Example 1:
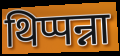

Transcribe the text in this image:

थिप्पन्ना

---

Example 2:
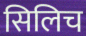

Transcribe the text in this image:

सिलिच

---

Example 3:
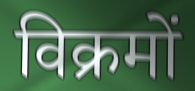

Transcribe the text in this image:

विक्रमों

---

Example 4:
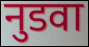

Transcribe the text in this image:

नुडवा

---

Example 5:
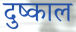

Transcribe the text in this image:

दुष्काल